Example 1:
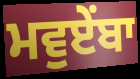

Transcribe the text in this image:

ਮਵੁਏਂਬਾ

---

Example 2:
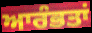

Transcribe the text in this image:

ਆਰੰਭਤਾਂ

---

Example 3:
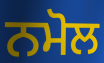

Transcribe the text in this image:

ਨਮੋਲ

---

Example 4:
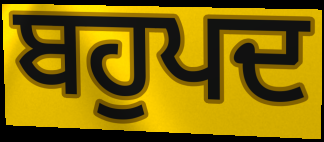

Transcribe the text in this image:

ਬਹੁਪਦ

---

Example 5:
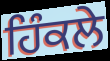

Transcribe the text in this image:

ਹਿੰਕਲੇ